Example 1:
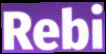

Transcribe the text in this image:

Rebi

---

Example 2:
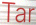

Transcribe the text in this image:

Tar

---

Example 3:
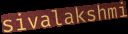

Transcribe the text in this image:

sivalakshmi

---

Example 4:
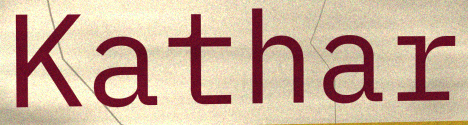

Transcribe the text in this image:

Kathar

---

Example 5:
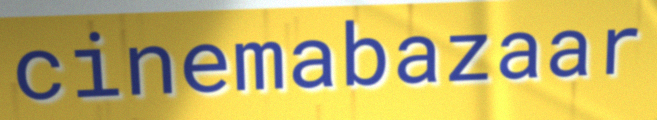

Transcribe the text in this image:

cinemabazaar